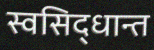
स्वसिद्धान्त